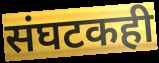
संघटकही